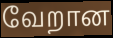
வேறான